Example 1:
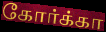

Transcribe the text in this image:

கோர்க்கா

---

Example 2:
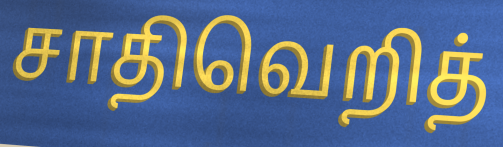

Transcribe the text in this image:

சாதிவெறித்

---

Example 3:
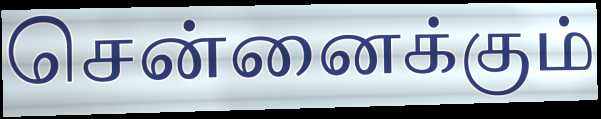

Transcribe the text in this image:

சென்னைக்கும்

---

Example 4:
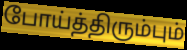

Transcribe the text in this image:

போய்த்திரும்பும்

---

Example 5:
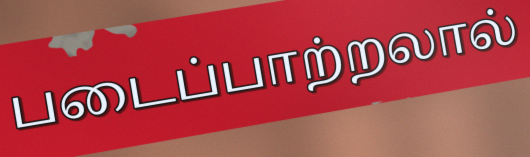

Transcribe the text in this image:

படைப்பாற்றலால்